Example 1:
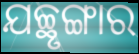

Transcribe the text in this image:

ଯଚ୍ଛୃଙ୍ଗାର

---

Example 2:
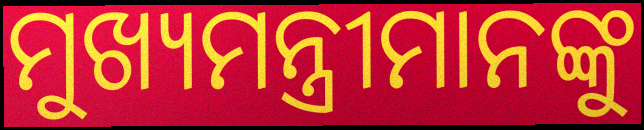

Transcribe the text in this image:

ମୁଖ୍ୟମନ୍ତ୍ରୀମାନଙ୍କୁ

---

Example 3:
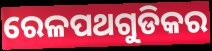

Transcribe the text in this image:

ରେଳପଥଗୁଡିକର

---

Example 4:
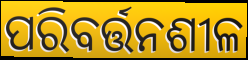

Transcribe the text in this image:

ପରିବର୍ତ୍ତନଶୀଳ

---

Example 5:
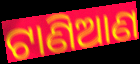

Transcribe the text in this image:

ଟାଣିଆଣ